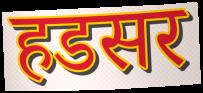
हडसर